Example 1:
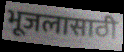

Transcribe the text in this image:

भूजलासाठी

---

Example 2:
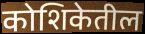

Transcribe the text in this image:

कोशिकेतील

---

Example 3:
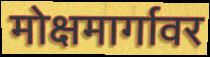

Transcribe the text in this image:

मोक्षमार्गावर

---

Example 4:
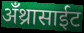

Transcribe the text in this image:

अँथ्रासाईट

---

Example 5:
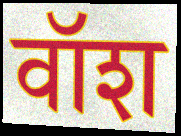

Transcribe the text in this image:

वॉश